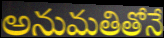
అనుమతితోనే